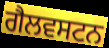
ਗੈਲਵਸਟਨ